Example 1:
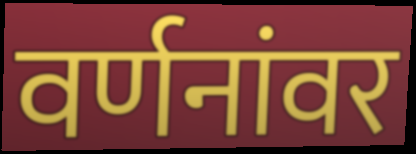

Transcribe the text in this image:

वर्णनांवर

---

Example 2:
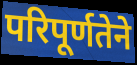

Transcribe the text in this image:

परिपूर्णतेने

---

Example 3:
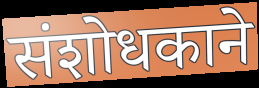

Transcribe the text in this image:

संशोधकाने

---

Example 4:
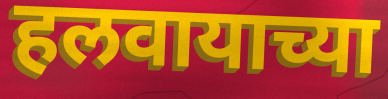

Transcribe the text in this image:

हलवायाच्या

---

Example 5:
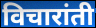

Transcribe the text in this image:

विचारांती